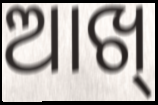
ଆଖ୍